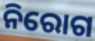
ନିରୋଗ